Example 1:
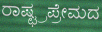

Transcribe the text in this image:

ರಾಷ್ಟ್ರಪ್ರೇಮದ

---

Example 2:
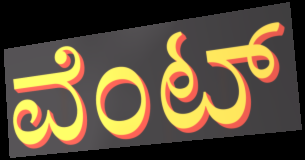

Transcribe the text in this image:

ವೆಂಟ್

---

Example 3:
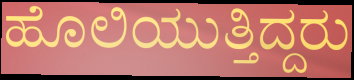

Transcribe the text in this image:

ಹೊಲಿಯುತ್ತಿದ್ದರು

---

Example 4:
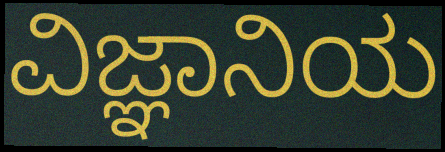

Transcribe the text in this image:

ವಿಜ್ಞಾನಿಯ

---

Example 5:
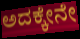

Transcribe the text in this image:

ಅದಕ್ಕೇನೇ